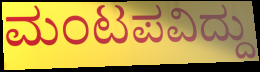
ಮಂಟಪವಿದ್ದು